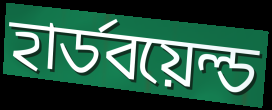
হার্ডবয়েল্ড